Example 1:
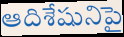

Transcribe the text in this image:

ఆదిశేషునిపై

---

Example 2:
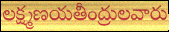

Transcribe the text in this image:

లక్ష్మణయతీంద్రులవారు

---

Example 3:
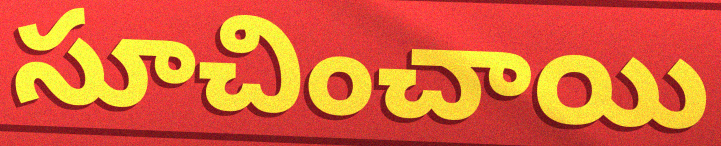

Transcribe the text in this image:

సూచించాయి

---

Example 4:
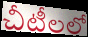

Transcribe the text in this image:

చీటీలలో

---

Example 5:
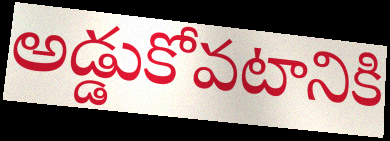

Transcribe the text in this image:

అడ్డుకోవటానికి